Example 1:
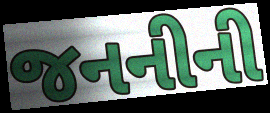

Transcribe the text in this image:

જનનીની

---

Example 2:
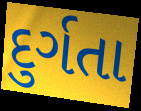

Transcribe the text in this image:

દુર્ગતા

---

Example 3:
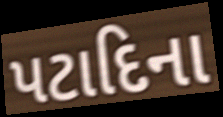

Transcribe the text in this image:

પટાદિના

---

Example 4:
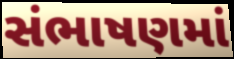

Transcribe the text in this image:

સંભાષણમાં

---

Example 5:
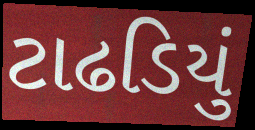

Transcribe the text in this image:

ટાઢડિયું